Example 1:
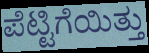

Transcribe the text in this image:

ಪೆಟ್ಟಿಗೆಯಿತ್ತು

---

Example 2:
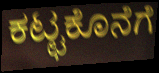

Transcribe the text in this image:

ಕಟ್ಟಕೊನೆಗೆ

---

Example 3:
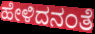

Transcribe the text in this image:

ಹೇಳಿದನಂತೆ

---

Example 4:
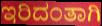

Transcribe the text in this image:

ಇರಿದಂತಾಗಿ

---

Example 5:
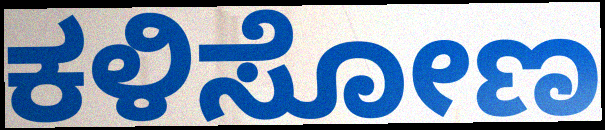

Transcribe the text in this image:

ಕಳಿಸೋಣ